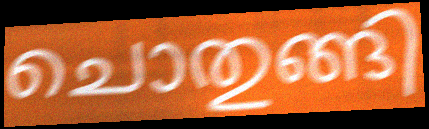
ചൊതുങ്ങി